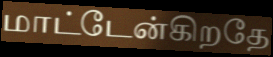
மாட்டேன்கிறதே